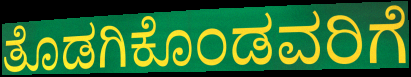
ತೊಡಗಿಕೊಂಡವರಿಗೆ